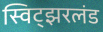
स्विट्झरलंड